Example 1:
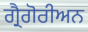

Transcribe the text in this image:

ਗ੍ਰੈਗੋਰੀਅਨ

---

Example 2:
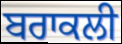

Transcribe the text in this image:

ਬਰਾਕਲੀ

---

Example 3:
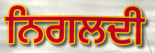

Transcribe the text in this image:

ਨਿਗਲਦੀ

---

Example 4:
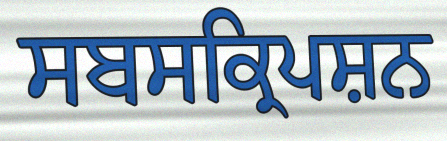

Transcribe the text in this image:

ਸਬਸਕ੍ਰਿਪਸ਼ਨ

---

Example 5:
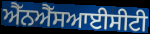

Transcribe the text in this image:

ਐੱਨਐੱਸਆਈਸੀਟੀ